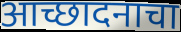
आच्छादनाचा